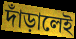
দাঁড়ালেই